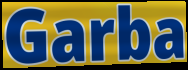
Garba